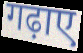
गढ़ाए